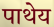
पाथेय